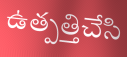
ఉత్పత్తిచేసి